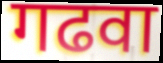
गढवा